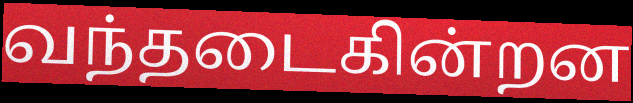
வந்தடைகின்றன